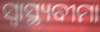
ସ୍ଵାସ୍ଥ୍ୟବୀମା